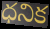
ధనిక